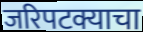
जरिपटक्याचा